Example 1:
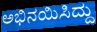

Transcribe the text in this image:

ಅಭಿನಯಿಸಿದ್ದು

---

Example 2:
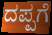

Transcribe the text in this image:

ದಪ್ಪಗೆ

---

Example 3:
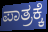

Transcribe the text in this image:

ಪಾತ್ರಕ್ಕೆ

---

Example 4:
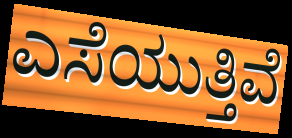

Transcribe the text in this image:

ಎಸೆಯುತ್ತಿವೆ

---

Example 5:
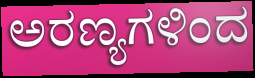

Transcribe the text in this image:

ಅರಣ್ಯಗಳಿಂದ